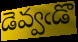
డెవ్వఁడొ